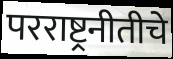
परराष्ट्रनीतीचे